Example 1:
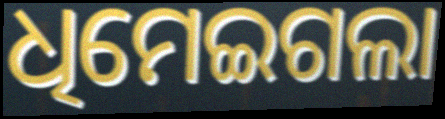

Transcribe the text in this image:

ଧିମେଇଗଲା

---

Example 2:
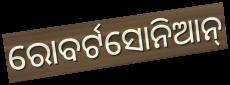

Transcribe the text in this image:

ରୋବର୍ଟସୋନିଆନ୍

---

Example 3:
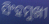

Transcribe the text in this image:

ସିଂହମୁଖୀ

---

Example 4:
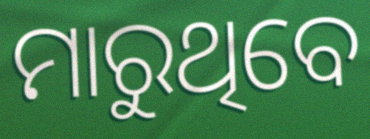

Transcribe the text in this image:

ମାରୁଥିବେ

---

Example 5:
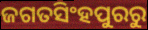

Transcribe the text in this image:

ଜଗତସିଂହପୁରରୁ